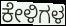
ಕೇಳಿಗಳ